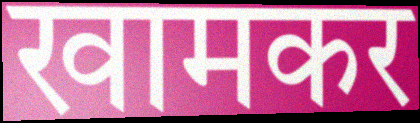
खामकर